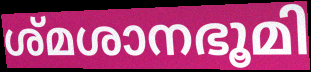
ശ്മശാനഭൂമി